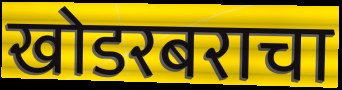
खोडरबराचा